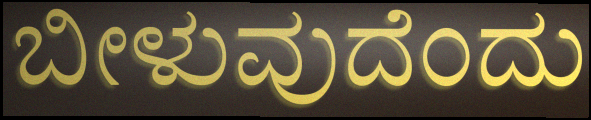
ಬೀಳುವುದೆಂದು